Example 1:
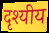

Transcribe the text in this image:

दृश्यीय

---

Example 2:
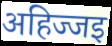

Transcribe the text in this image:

अहिज्जइ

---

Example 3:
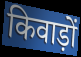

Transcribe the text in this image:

किवाड़ों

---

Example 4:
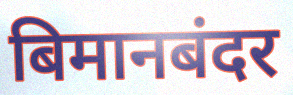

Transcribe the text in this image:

बिमानबंदर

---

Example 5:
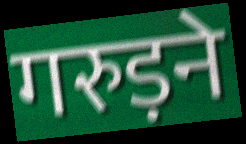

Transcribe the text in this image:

गरुड़ने